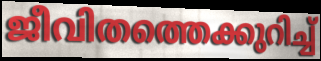
ജീവിതത്തെക്കുറിച്ച്